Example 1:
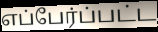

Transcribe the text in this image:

எப்பேர்ப்பட்ட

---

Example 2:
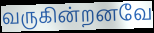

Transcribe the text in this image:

வருகின்றனவே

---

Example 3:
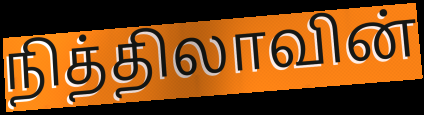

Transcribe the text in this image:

நித்திலாவின்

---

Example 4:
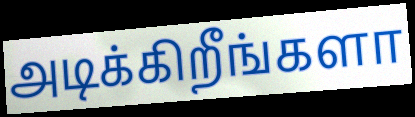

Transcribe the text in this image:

அடிக்கிறீங்களா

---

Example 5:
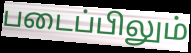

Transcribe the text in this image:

படைப்பிலும்